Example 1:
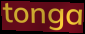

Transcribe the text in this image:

tonga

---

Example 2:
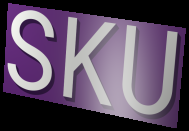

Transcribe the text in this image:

SKU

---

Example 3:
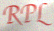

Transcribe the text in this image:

RPL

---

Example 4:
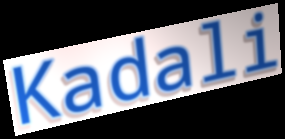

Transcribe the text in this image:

Kadali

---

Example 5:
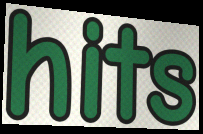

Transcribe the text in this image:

hits